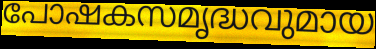
പോഷകസമൃദ്ധവുമായ